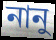
নানু